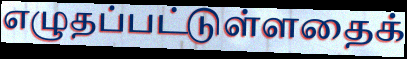
எழுதப்பட்டுள்ளதைக்